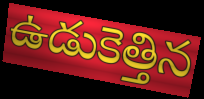
ఉడుకెత్తిన